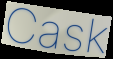
Cask